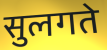
सुलगते